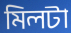
মিলটা